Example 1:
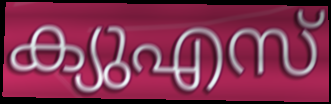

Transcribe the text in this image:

ക്യുഎസ്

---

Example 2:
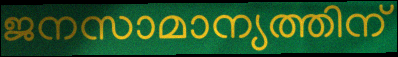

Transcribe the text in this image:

ജനസാമാന്യത്തിന്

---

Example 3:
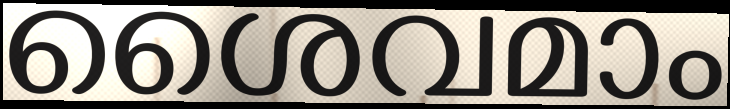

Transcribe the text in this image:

ശൈവമാം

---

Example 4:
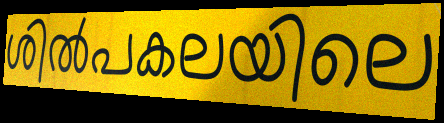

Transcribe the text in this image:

ശിൽപകലയിലെ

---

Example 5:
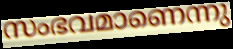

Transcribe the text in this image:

സംഭവമാണെന്നു